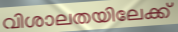
വിശാലതയിലേക്ക്